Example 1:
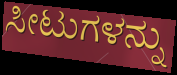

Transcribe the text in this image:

ಸೀಟುಗಳನ್ನು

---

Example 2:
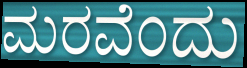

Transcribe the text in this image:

ಮರವೆಂದು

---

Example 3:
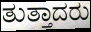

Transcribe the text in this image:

ತುತ್ತಾದರು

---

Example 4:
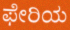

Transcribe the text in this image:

ಫೇರಿಯ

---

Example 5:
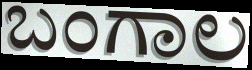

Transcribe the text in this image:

ಬಂಗಾಲ